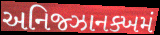
અનિજ્ઝાનક્ખમં